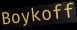
Boykoff